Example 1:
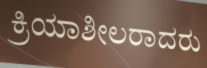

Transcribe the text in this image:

ಕ್ರಿಯಾಶೀಲರಾದರು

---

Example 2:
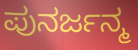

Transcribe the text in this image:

ಪುನರ್ಜನ್ಮ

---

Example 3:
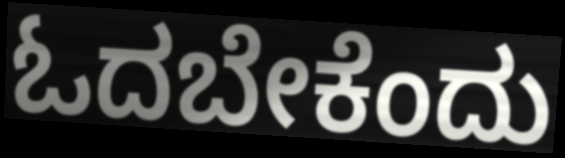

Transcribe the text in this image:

ಓದಬೇಕೆಂದು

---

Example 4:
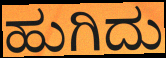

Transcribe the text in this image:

ಹುಗಿದು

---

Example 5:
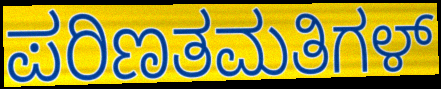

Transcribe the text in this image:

ಪರಿಣತಮತಿಗಳ್